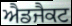
ਐਡਜੈਕਟ